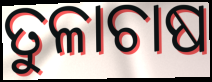
ତୁଳାଚାଷ